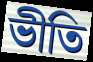
ভীতি